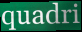
quadri